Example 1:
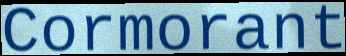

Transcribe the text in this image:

Cormorant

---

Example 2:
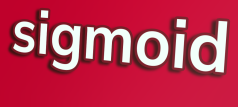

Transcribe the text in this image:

sigmoid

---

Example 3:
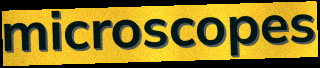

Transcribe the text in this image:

microscopes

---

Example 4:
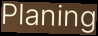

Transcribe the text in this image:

Planing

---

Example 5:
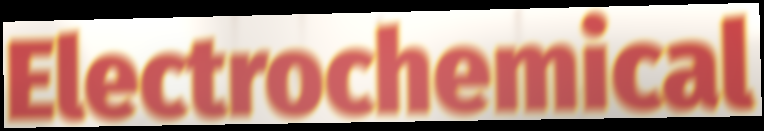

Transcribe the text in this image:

Electrochemical